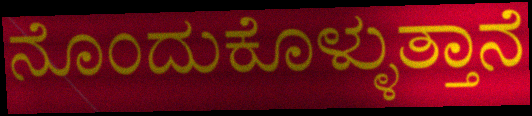
ನೊಂದುಕೊಳ್ಳುತ್ತಾನೆ